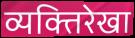
व्यक्तिरेखा